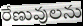
రేణువులను